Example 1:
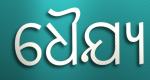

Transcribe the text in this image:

ଧୈଯ୍ଯ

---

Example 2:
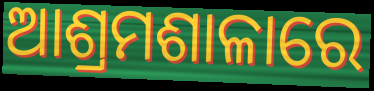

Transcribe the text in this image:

ଆଶ୍ରମଶାଳାରେ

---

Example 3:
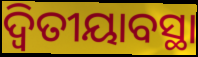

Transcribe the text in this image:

ଦ୍ବିତୀୟାବସ୍ଥା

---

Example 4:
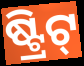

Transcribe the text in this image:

ଷ୍ଟ୍ରିଟ୍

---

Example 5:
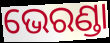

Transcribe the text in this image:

ଭେରଣ୍ଡା